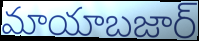
మాయాబజార్